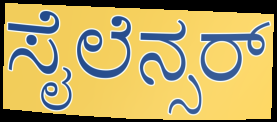
ಸೈಲೆನ್ಸರ್